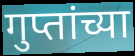
गुप्तांच्या